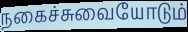
நகைச்சுவையோடும்